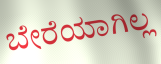
ಬೇರೆಯಾಗಿಲ್ಲ